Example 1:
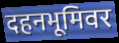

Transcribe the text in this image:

दहनभूमिवर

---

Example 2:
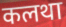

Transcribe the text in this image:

कलथा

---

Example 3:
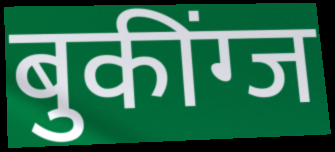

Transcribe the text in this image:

बुकींग्ज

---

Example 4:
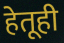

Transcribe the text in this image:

हेतूही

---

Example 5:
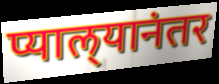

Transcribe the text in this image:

प्याल्यानंतर